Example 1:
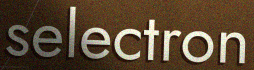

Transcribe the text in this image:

selectron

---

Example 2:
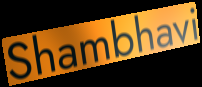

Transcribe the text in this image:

Shambhavi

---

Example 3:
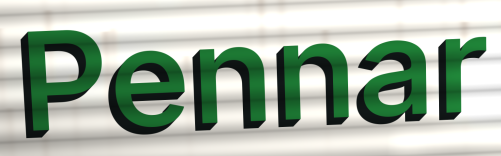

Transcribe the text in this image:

Pennar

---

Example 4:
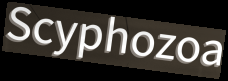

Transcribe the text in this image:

Scyphozoa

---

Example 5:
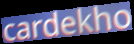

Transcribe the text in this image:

cardekho